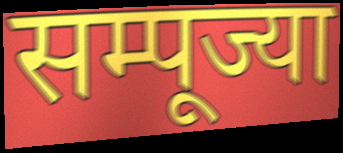
सम्पूज्या